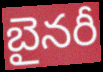
బైనరీ